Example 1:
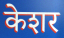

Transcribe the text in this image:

केशर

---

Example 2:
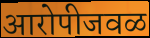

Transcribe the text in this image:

आरोपीजवळ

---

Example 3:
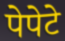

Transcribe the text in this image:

पेपेटे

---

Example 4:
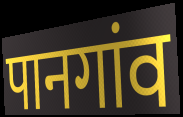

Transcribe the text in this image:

पानगांव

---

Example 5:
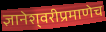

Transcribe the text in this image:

ज्ञानेश्वरीप्रमाणेच